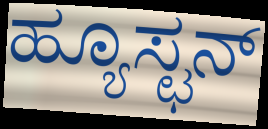
ಹ್ಯೂಸ್ಟನ್